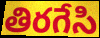
తిరగేసి